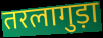
तरलागुड़ा